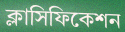
ক্লাসিফিকেশন